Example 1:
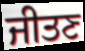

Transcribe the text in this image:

ਜੀਤਣ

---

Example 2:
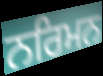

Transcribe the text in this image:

ਨਰਿਮਨ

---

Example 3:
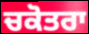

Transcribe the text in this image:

ਚਕੋਤਰਾ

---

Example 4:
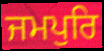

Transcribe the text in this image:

ਜਮਪੁਰਿ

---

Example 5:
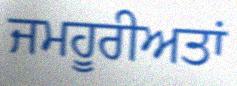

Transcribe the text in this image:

ਜਮਹੂਰੀਅਤਾਂ